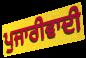
ਪੁਜਾਰੀਵਾਦੀ